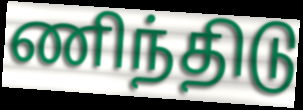
ணிந்திடு